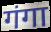
गंगा